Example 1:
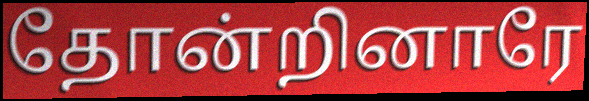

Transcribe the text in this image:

தோன்றினாரே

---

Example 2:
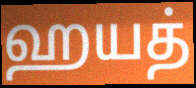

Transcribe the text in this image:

ஹயத்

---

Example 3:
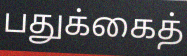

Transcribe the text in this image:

பதுக்கைத்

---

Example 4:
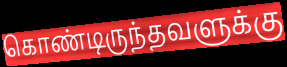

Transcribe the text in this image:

கொண்டிருந்தவளுக்கு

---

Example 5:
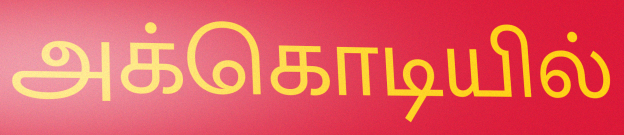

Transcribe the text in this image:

அக்கொடியில்